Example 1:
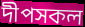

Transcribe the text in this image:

দীপসকল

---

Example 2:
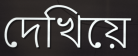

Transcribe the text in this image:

দেখিয়ে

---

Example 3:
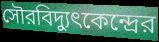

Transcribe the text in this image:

সৌরবিদ্যুৎকেন্দ্রের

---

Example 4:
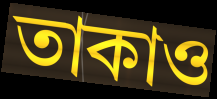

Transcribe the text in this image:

তাকাও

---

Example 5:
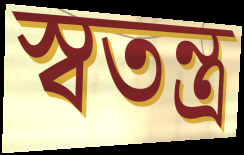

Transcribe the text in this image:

স্বতন্ত্র